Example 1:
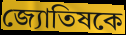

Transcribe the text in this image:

জ্যোতিষকে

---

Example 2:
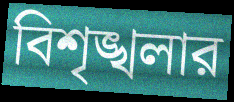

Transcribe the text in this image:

বিশৃঙ্খলার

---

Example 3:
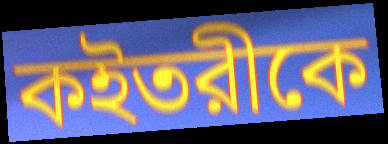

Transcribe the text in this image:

কইতরীকে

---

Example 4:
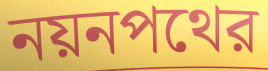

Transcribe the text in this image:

নয়নপথের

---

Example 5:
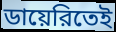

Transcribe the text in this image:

ডায়েরিতেই